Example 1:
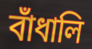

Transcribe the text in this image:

বাঁধালি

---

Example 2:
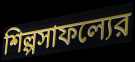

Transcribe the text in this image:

শিল্পসাফল্যের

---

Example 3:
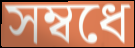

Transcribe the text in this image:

সম্বধে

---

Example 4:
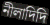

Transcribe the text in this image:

নীলাদিদি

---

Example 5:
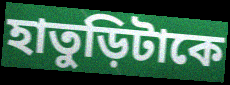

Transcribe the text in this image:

হাতুড়িটাকে